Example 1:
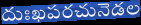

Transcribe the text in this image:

దుఃఖపరచునెడల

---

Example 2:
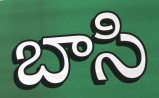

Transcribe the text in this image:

బాసి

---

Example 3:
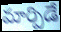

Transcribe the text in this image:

మార్పిడే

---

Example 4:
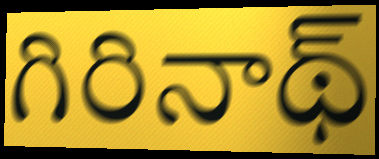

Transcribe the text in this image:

గిరినాథ్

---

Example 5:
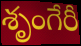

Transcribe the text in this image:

శృంగేరీ